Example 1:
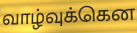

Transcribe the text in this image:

வாழ்வுக்கென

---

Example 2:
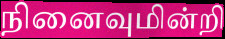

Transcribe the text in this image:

நினைவுமின்றி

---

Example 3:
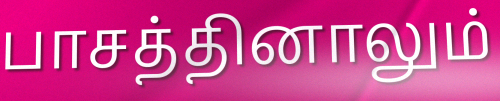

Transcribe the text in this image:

பாசத்தினாலும்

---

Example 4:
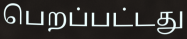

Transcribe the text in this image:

பெறப்பட்டது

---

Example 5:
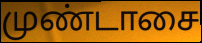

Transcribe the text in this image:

முண்டாசை